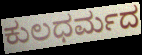
ಕುಲಧರ್ಮದ